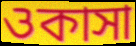
ওকাসা